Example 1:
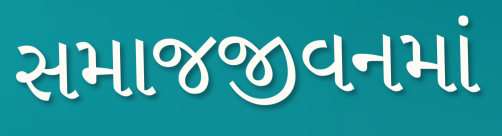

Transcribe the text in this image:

સમાજજીવનમાં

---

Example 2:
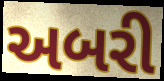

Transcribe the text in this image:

અબરી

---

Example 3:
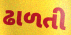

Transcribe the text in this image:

ઢાળતી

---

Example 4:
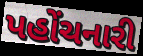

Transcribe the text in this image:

પહોંચનારી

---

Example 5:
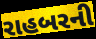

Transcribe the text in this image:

રાહબરની